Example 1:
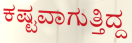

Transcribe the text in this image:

ಕಷ್ಟವಾಗುತ್ತಿದ್ದ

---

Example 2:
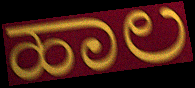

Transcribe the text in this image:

ಹಾಲ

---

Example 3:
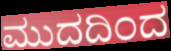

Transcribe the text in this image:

ಮುದದಿಂದ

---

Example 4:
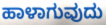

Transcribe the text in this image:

ಹಾಳಾಗುವುದು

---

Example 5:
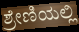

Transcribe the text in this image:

ಶ್ರೇಣಿಯಲ್ಲಿ